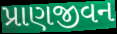
પ્રાણજીવન